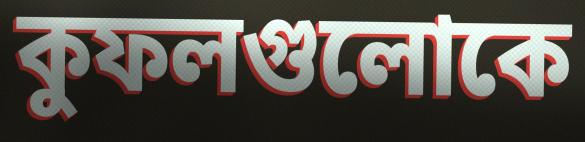
কুফলগুলোকে